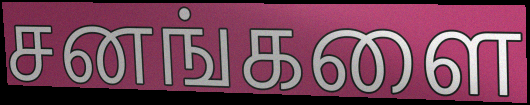
சனங்களை